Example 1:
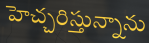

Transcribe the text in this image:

హెచ్చరిస్తున్నాను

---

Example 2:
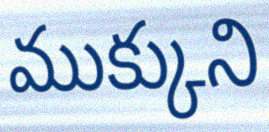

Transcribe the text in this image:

ముక్కుని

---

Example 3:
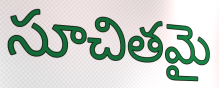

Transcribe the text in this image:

సూచితమై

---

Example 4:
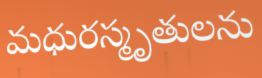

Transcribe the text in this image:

మధురస్మృతులను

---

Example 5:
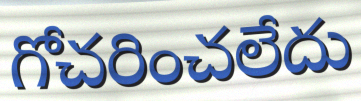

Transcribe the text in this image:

గోచరించలేదు